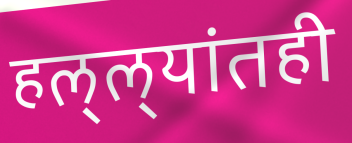
हल्ल्यांतही